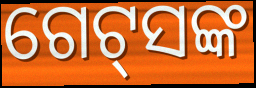
ଗେଟ୍‌ସଙ୍କ